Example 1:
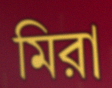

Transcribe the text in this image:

মিরা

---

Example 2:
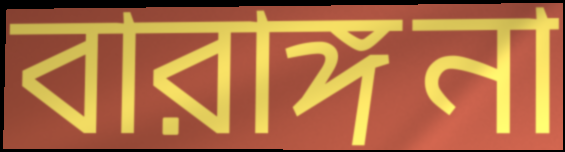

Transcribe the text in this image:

বারাঙ্গনা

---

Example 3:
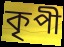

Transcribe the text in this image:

কৃপী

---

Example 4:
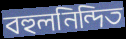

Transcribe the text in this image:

বহুলনিন্দিত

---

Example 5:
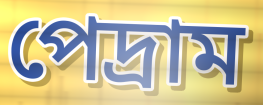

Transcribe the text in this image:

পেদ্রাম